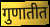
गुणातीत